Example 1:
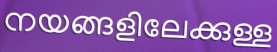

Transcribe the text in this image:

നയങ്ങളിലേക്കുള്ള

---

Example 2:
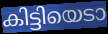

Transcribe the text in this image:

കിട്ടിയെടാ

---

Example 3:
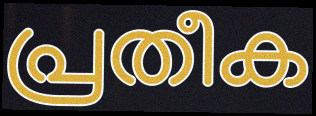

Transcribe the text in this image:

പ്രതീക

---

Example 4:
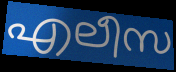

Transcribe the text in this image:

എലീസ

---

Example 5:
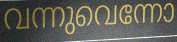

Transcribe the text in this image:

വന്നുവെന്നോ